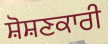
ਸ਼ੋਸ਼ਣਕਾਰੀ